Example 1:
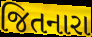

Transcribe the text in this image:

જિતનારા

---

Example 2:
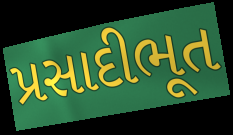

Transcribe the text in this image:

પ્રસાદીભૂત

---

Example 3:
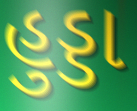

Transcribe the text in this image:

હુડ્ડા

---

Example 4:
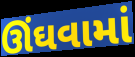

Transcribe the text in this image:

ઊંઘવામાં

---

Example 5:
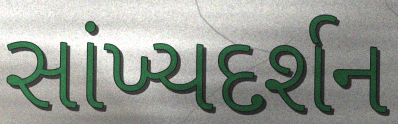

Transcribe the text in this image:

સાંખ્યદર્શન